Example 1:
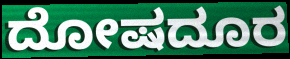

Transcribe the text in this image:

ದೋಷದೂರ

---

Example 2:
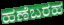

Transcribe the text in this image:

ಹಣೆಬರಹ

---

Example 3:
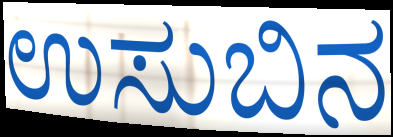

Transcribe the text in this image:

ಉಸುಬಿನ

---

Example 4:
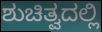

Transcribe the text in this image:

ಶುಚಿತ್ವದಲ್ಲಿ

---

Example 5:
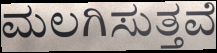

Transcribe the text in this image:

ಮಲಗಿಸುತ್ತವೆ